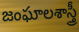
జంఘాలశాస్త్రీ